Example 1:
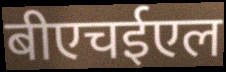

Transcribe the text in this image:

बीएचईएल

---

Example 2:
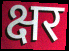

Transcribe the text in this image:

क्षर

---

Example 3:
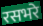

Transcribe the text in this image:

रसभरे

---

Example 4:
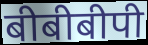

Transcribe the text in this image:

बीबीबीपी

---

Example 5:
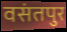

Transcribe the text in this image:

वसंतपुर